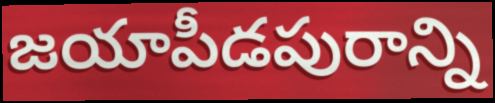
జయాపీడపురాన్ని